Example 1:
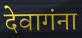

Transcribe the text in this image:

देवागंना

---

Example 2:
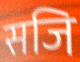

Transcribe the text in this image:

सजि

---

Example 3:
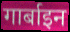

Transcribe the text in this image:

गार्बाइन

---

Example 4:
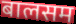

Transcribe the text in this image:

बालसम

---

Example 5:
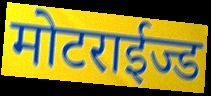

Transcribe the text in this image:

मोटराईज्ड